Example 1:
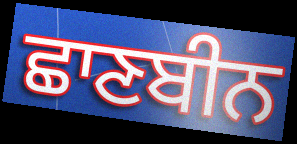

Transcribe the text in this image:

ਛਾਣਬੀਨ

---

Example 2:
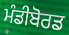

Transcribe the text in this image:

ਮੰਡੀਬੋਰਡ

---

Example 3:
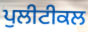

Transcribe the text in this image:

ਪੁਲੀਟੀਕਲ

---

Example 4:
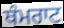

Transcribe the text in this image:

ਥੰਮਰਾਟ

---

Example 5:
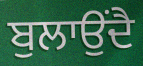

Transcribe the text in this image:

ਬੁਲਾਉਂਦੈ